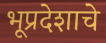
भूप्रदेशाचे